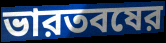
ভারতবষের